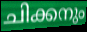
ചിക്കനും